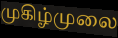
முகிழ்முலை